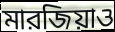
মারজিয়াও